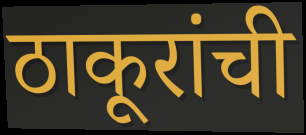
ठाकूरांची